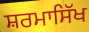
ਸ਼ਰਮਾਸਿੱਖ